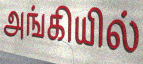
அங்கியில்